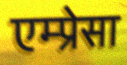
एम्प्रेसा